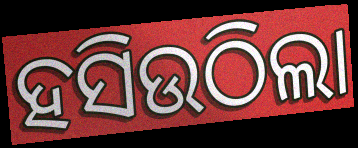
ହସିଉଠିଲା